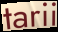
tarii